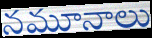
నమూనాలు